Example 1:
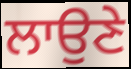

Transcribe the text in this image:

ਲਾਉਣੇ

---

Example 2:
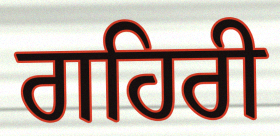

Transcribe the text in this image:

ਗਹਿਰੀ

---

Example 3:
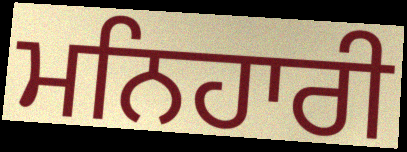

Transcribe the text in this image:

ਮਨਿਹਾਰੀ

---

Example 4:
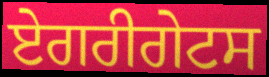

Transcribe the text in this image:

ਏਗਰੀਗੇਟਸ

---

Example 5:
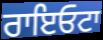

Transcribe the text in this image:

ਰਾਇਓਟਾ